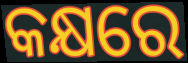
କକ୍ଷରେ